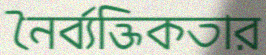
নৈর্ব্যক্তিকতার